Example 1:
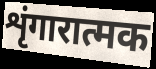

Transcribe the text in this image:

शृंगारात्मक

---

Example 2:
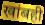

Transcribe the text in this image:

खांबही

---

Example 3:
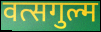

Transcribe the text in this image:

वत्सगुल्म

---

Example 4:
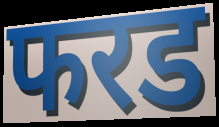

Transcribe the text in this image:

फरड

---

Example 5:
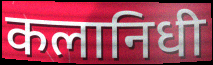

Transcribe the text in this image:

कलानिधी